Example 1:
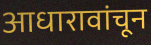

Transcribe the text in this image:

आधारावांचून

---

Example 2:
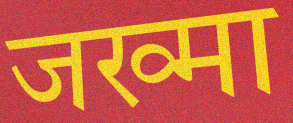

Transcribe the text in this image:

जख्मा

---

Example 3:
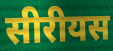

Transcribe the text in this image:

सीरीयस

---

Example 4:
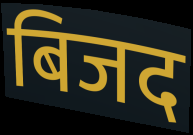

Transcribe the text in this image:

बिजद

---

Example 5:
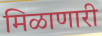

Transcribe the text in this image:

मिळाणारी